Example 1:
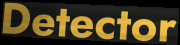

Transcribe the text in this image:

Detector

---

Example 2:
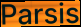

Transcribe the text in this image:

Parsis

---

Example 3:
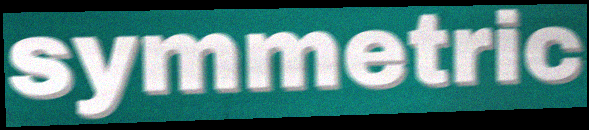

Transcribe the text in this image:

symmetric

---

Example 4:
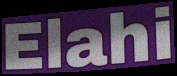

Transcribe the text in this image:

Elahi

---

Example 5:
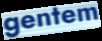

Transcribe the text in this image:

gentem